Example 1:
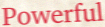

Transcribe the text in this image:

Powerful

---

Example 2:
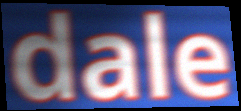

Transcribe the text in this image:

dale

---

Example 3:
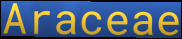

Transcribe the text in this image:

Araceae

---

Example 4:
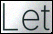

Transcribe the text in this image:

Let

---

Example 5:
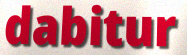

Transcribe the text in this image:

dabitur